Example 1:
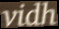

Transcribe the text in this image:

vidh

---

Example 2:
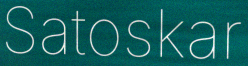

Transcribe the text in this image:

Satoskar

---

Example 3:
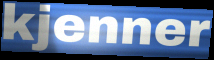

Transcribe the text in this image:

kjenner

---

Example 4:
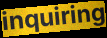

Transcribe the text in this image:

inquiring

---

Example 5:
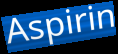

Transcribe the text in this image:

Aspirin